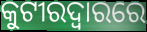
କୁଟୀରଦ୍ୱାରରେ